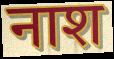
नाश